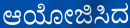
ಆಯೋಜಿಸಿದ